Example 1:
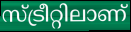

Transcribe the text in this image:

സ്ട്രീറ്റിലാണ്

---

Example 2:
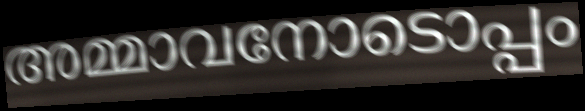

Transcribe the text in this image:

അമ്മാവനോടൊപ്പം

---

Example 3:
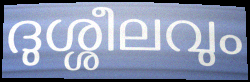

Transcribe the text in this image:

ദുശ്ശീലവും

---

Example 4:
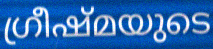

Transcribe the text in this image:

ഗ്രീഷ്മയുടെ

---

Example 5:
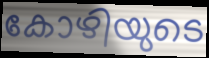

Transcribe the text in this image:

കോഴിയുടെ